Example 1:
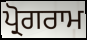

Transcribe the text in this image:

ਪ੍ਰ੍ਰੋਗਰਾਮ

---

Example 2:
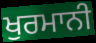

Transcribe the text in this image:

ਖੁਰਮਾਨੀ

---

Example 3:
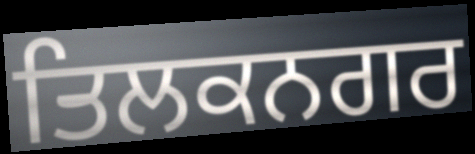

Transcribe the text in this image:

ਤਿਲਕਨਗਰ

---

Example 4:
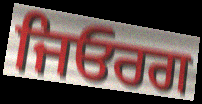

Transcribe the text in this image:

ਜਿਓਰਗ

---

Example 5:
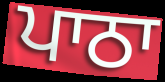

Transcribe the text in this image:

ਪਾਠਾ